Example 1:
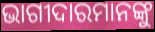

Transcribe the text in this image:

ଭାଗୀଦାରମାନଙ୍କୁ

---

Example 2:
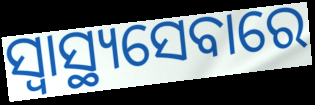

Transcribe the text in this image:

ସ୍ୱାସ୍ଥ୍ୟସେବାରେ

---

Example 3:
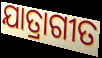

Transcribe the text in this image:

ଯାତ୍ରାଗୀତ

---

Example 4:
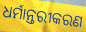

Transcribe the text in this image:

ଧର୍ମାନ୍ତରୀକରଣ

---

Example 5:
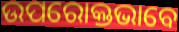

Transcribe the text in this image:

ଉପରୋକ୍ତଭାବେ